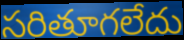
సరితూగలేదు